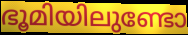
ഭൂമിയിലുണ്ടോ